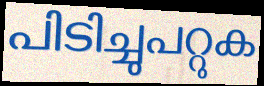
പിടിച്ചുപറ്റുക